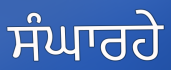
ਸੰਘਾਰਹੇ